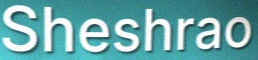
Sheshrao